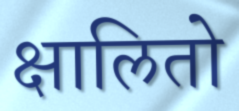
क्षालितो